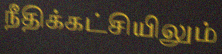
நீதிக்கட்சியிலும்